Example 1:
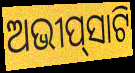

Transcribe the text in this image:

ଅଭୀପ୍‌ସାଟି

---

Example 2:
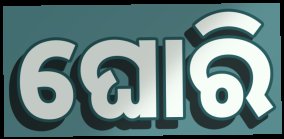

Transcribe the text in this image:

ଘୋରି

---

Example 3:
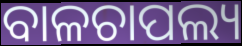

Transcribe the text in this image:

ବାଳଚାପଲ୍ୟ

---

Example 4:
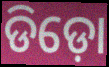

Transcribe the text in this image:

ଡିଡ଼ୋ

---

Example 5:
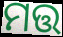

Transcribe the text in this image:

ମତ୍ତ